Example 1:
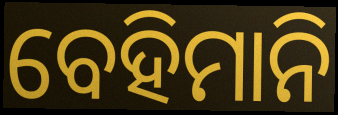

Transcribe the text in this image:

ବେହିମାନି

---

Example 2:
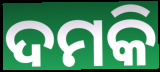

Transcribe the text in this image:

ଦମକି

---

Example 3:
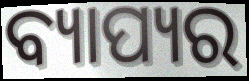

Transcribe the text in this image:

ବ୍ୟାପ୍ୟର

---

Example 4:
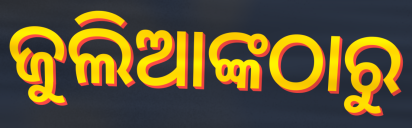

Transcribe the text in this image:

ଜୁଲିଆଙ୍କଠାରୁ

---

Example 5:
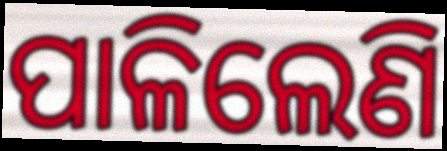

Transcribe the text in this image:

ପାଳିଲେଣି